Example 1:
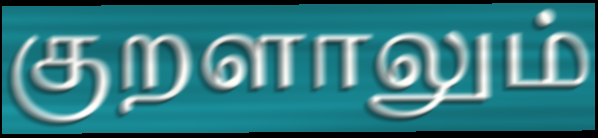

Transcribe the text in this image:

குறளாலும்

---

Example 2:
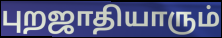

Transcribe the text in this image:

புறஜாதியாரும்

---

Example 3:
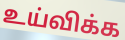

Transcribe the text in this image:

உய்விக்க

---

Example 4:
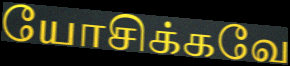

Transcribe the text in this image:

யோசிக்கவே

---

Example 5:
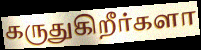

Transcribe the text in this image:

கருதுகிறீர்களா